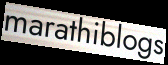
marathiblogs